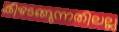
കീഴടങ്ങുന്നതിലല്ല